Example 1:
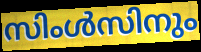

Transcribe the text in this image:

സിംൾസിനും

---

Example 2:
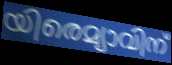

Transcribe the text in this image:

യിരെമ്യാവിന്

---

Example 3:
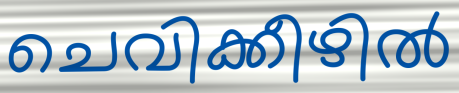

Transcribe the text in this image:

ചെവിക്കീഴിൽ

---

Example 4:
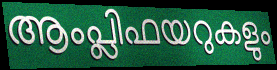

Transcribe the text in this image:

ആംപ്ലിഫയറുകളും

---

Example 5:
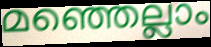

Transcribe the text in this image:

മഞ്ഞെല്ലാം